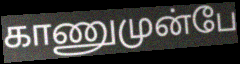
காணுமுன்பே